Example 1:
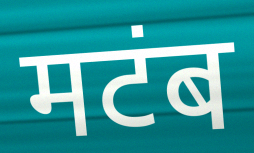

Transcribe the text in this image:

मटंब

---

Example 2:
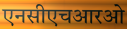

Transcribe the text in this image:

एनसीएचआरओ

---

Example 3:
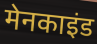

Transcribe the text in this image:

मेनकाइंड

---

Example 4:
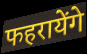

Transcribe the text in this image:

फहरायेंगे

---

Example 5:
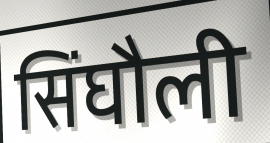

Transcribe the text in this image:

सिंघौली